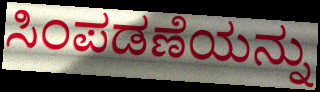
ಸಿಂಪಡಣೆಯನ್ನು